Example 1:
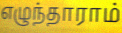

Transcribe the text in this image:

எழுந்தாராம்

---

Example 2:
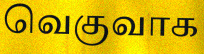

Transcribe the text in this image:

வெகுவாக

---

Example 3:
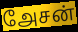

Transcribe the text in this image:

அேசன்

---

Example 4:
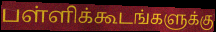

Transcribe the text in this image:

பள்ளிக்கூடங்களுக்கு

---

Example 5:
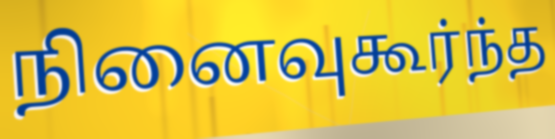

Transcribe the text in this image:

நினைவுகூர்ந்த